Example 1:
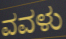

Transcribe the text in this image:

ವವಳು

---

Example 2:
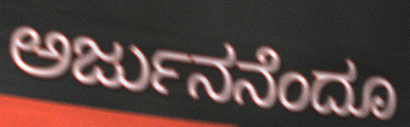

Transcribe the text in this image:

ಅರ್ಜುನನೆಂದೂ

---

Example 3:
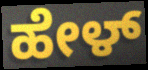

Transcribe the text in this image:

ಹೇಳ್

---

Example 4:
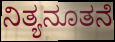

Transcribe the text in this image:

ನಿತ್ಯನೂತನೆ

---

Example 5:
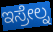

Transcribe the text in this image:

ಇಸ್ರೇಲ್ನ